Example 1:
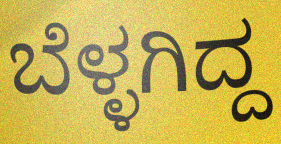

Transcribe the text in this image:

ಬೆಳ್ಳಗಿದ್ದ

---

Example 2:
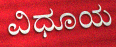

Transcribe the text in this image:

ವಿಧೂಯ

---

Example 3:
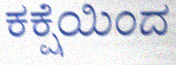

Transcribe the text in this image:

ಕಕ್ಷೆಯಿಂದ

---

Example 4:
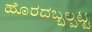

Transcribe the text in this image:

ಹೊರದಬ್ಬಲ್ಪಟ್ಟ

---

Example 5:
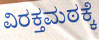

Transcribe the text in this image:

ವಿರಕ್ತಮಠಕ್ಕೆ